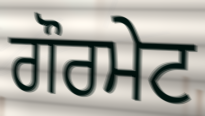
ਗੌਰਮੇਟ